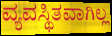
ವ್ಯವಸ್ಥಿತವಾಗಿಲ್ಲ